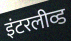
इंटरलीव्ड